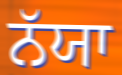
ਨੱਯਾ